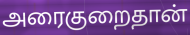
அரைகுறைதான்